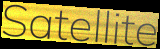
Satellite